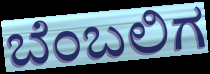
ಬೆಂಬಲಿಗ